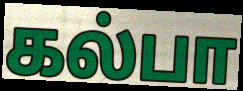
கல்பா